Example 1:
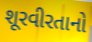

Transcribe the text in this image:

શૂરવીરતાનો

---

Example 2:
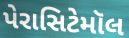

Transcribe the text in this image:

પેરાસિટેમૉલ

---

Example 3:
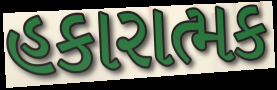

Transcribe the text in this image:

હકારાત્મક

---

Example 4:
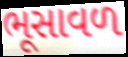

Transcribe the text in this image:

ભૂસાવળ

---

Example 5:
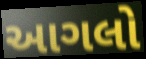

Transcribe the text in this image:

આગલો